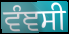
ਵੰਞਸੀ